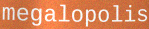
megalopolis